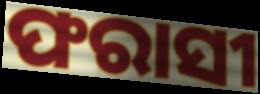
ଫରାସୀ